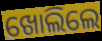
ଖୋଲିଲେ